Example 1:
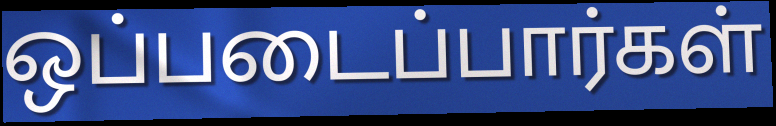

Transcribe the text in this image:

ஒப்படைப்பார்கள்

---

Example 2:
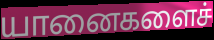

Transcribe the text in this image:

யானைகளைச்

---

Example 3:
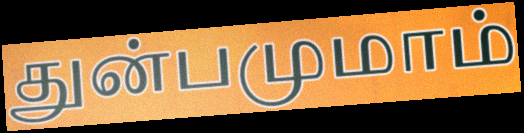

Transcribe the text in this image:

துன்பமுமாம்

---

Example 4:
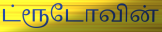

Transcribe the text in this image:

ட்ரூடோவின்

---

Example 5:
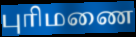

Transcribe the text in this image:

புரிமணை